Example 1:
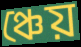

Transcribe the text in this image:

ঞ্চেয়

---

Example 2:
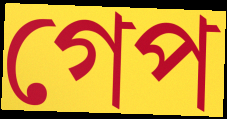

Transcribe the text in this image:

গেপ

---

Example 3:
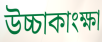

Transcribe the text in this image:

উচ্চাকাংক্ষা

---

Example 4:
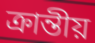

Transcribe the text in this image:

ক্ৰান্তীয়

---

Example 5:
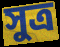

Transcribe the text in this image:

সুত্ৰ